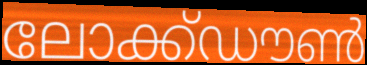
ലോക്ക്ഡൗൺ